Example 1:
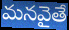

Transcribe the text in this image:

మనవైతే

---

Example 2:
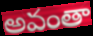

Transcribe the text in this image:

అవంతా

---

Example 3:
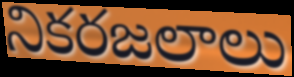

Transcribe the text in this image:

నికరజలాలు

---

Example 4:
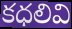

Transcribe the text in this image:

కధలివి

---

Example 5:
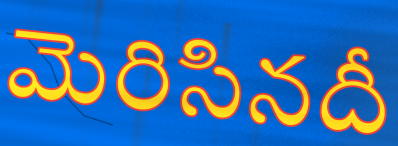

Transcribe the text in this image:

మెరిసినదీ